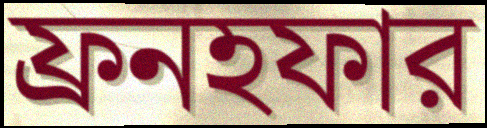
ফ্রনহফার